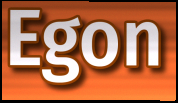
Egon